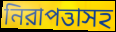
নিরাপত্তাসহ